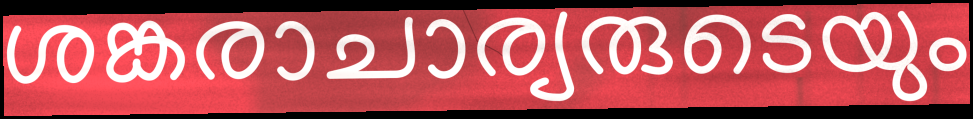
ശങ്കരാചാര്യരുടെയും